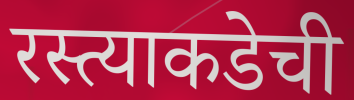
रस्त्याकडेची